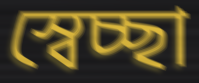
স্বেচ্ছা